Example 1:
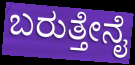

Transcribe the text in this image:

ಬರುತ್ತೇನೈ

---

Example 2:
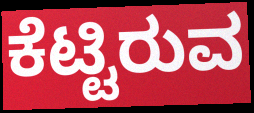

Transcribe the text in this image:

ಕೆಟ್ಟಿರುವ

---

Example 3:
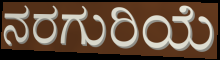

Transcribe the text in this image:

ನರಗುರಿಯೆ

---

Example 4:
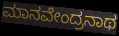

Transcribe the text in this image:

ಮಾನವೇಂದ್ರನಾಥ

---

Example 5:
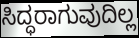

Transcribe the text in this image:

ಸಿದ್ಧರಾಗುವುದಿಲ್ಲ